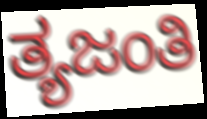
ತ್ಯಜಂತಿ